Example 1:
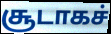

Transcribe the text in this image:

சூடாகச்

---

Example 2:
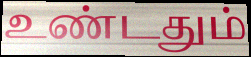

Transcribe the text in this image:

உண்டதும்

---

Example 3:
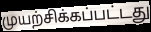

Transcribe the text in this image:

முயற்சிக்கப்பட்டது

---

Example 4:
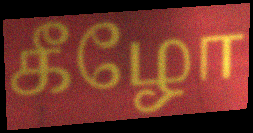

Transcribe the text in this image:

கீழோ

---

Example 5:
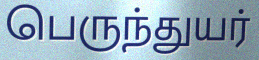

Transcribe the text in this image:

பெருந்துயர்